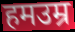
हमउम्र